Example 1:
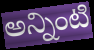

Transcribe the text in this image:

అన్నింటి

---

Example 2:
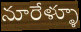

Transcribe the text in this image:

నూరేళ్ళూ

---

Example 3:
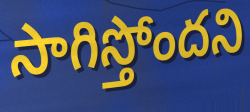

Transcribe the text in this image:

సాగిస్తోందని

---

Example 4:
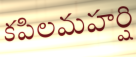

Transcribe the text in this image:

కపిలమహర్షి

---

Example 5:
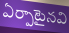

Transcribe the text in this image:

ఏర్పాటైనవి